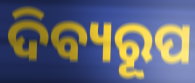
ଦିବ୍ୟରୂପ